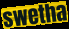
swetha